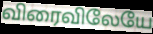
விரைவிலேயே